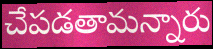
చేపడతామన్నారు